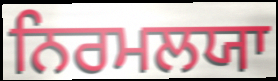
ਨਿਰਮਲਯਾ